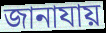
জানাযায়